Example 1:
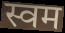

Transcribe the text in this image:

स्वम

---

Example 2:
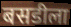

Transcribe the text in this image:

बसडीला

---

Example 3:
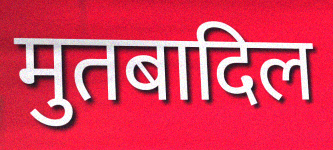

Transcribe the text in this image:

मुतबादिल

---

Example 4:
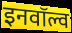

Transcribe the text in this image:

इनवॉल्व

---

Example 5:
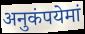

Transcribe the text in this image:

अनुकंपयेमां